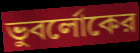
ভুবর্লোকের